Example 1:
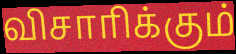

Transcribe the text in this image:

விசாரிக்கும்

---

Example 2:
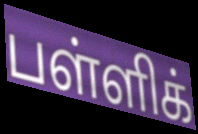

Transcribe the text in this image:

பள்ளிக்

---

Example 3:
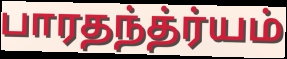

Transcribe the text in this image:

பாரதந்த்ர்யம்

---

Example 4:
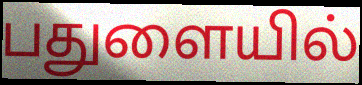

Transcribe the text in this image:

பதுளையில்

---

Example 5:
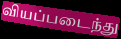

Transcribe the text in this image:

வியப்படைந்து